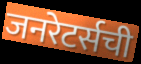
जनरेटर्सची